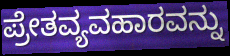
ಪ್ರೇತವ್ಯವಹಾರವನ್ನು